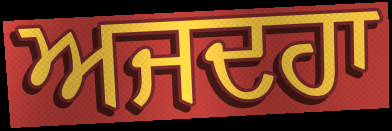
ਅਜਦਹਾ